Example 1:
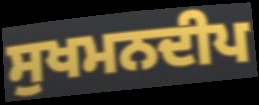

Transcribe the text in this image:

ਸੁਖਮਨਦੀਪ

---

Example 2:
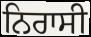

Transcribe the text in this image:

ਨਿਰਾਸੀ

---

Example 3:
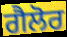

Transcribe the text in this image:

ਗੈਲੋਰ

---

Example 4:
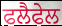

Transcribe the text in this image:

ਫਲੈਫੇਲ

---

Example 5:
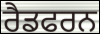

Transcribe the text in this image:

ਰੈਡਫਰਨ